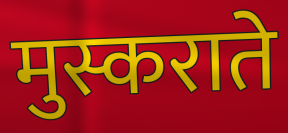
मुस्‍कराते